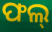
ଫଲ୍